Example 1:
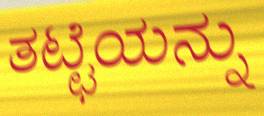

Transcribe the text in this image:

ತಟ್ಟೆಯನ್ನು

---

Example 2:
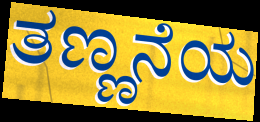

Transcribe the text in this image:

ತಣ್ಣನೆಯ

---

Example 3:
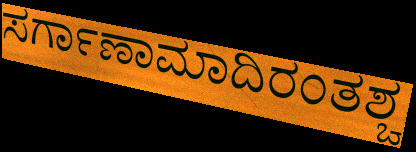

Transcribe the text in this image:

ಸರ್ಗಾಣಾಮಾದಿರಂತಶ್ಚ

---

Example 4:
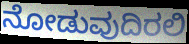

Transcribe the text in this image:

ನೋಡುವುದಿರಲಿ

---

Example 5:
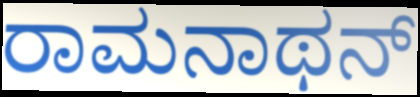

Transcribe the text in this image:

ರಾಮನಾಥನ್